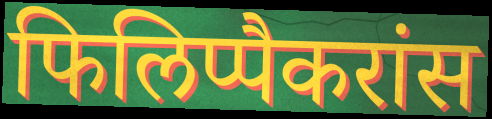
फिलिप्पैकरांस